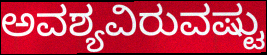
ಅವಶ್ಯವಿರುವಷ್ಟು